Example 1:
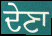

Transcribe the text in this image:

ਦੇਣਾ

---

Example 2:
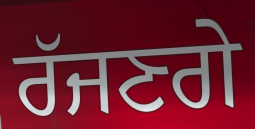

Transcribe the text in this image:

ਰੱਜਣਗੇ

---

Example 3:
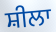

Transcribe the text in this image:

ਸ਼ੀਲਾ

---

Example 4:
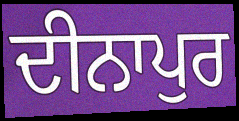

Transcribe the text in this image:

ਦੀਨਾਪੁਰ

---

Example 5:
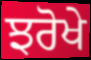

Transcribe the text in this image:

ਝਰੋਖੇ